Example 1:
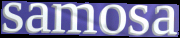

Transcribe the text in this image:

samosa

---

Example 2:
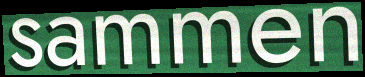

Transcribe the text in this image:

sammen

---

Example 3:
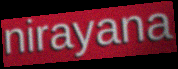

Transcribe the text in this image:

nirayana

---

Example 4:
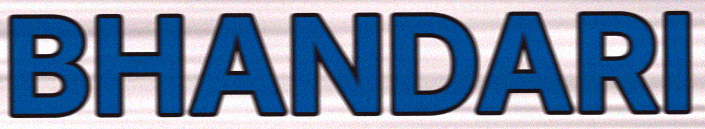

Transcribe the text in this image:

BHANDARI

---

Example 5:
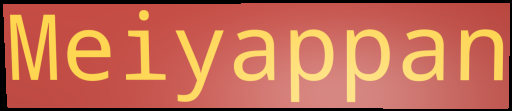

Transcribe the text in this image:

Meiyappan